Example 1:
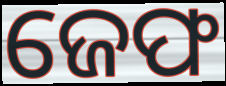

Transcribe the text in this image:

ଜେଫ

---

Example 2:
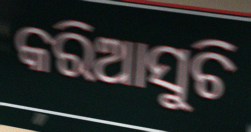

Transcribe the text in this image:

କରିଆସୁଚି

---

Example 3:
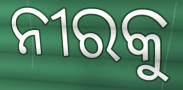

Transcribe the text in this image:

ନୀରକୁ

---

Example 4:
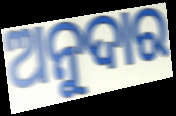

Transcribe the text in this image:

ଅନୁଦାର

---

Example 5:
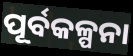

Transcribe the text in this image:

ପୂର୍ବକଳ୍ପନା